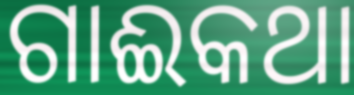
ଗାଈକଥା